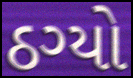
ઠગ્યો